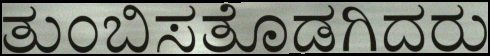
ತುಂಬಿಸತೊಡಗಿದರು